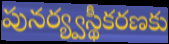
పునర్య్వస్థీకరణకు